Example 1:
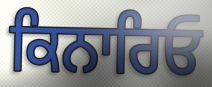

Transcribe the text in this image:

ਕਿਨਾਰਿਓ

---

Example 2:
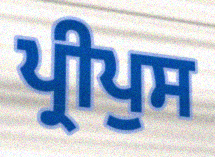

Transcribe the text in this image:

ਪ੍ਰੀਪੁਸ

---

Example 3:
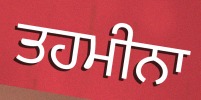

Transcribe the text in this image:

ਤਹਮੀਨਾ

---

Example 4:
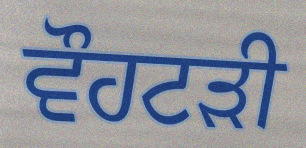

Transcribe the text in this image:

ਵੌਹਟੜੀ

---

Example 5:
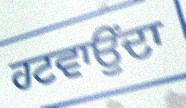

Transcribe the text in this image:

ਹਟਵਾਉਂਦਾ